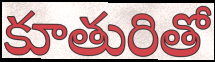
కూతురితో